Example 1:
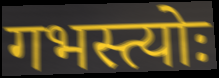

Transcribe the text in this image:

गभस्त्योः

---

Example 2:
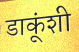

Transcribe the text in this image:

डाकूंशी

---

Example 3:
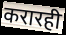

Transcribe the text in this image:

करारही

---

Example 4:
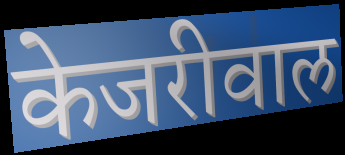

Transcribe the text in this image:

केजरीवाल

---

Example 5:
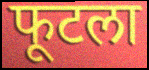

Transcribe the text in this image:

फूटला